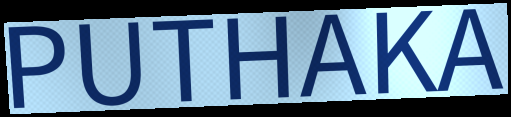
PUTHAKA